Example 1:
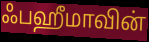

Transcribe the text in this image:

ஃபஹீமாவின்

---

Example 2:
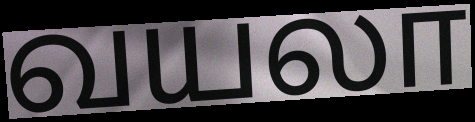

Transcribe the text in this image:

வயலா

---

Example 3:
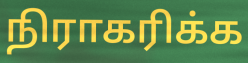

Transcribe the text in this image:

நிராகரிக்க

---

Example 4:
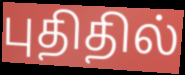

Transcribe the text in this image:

புதிதில்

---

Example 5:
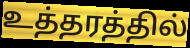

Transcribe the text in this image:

உத்தரத்தில்